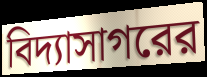
বিদ্যাসাগরের